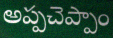
అప్పచెప్పాం